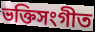
ভক্তিসংগীত